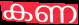
കണ